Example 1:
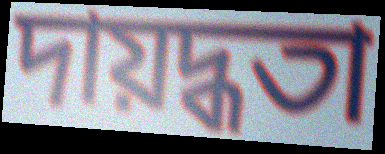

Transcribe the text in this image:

দায়দ্ধতা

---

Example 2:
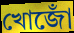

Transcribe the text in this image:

খোজোঁ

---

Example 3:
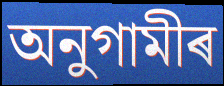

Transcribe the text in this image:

অনুগামীৰ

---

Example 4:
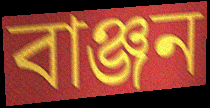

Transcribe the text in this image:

বাঞ্জন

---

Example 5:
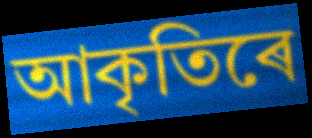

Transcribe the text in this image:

আকৃতিৰে